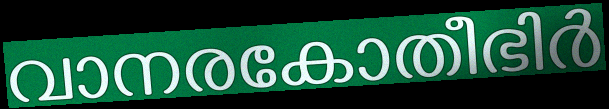
വാനരകോതീഭിർ